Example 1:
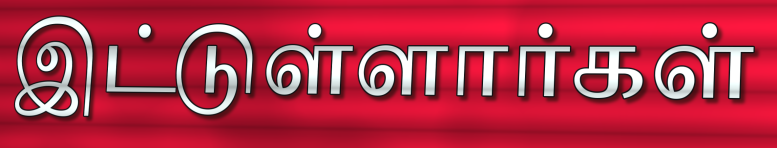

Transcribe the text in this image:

இட்டுள்ளார்கள்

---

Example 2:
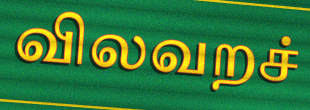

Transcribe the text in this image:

விலவறச்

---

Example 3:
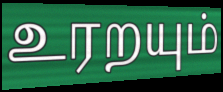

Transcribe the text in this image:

உரறயும்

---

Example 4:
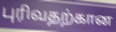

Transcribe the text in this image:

புரிவதற்கான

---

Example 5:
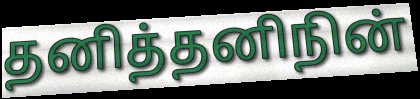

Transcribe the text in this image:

தனித்தனிநின்